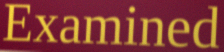
Examined